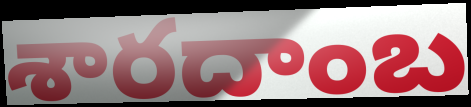
శారదాంబ